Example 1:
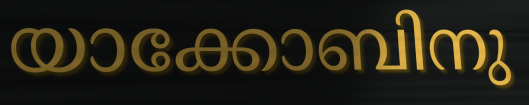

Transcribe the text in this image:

യാക്കോബിനു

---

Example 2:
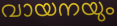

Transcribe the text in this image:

വായനയും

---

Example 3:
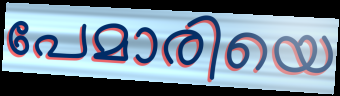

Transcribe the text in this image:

പേമാരിയെ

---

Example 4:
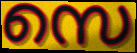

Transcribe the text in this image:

സെ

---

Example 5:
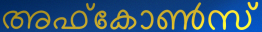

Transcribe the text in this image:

അഫ്കോൺസ്